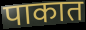
पाकात